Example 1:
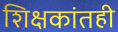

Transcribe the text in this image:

शिक्षकांतही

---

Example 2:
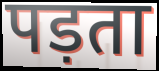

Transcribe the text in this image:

पड़ता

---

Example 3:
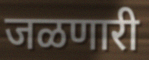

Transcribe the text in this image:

जळणारी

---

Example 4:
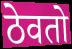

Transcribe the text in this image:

ठेवतो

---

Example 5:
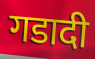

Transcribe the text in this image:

गडादी